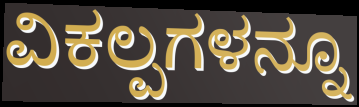
ವಿಕಲ್ಪಗಳನ್ನೂ